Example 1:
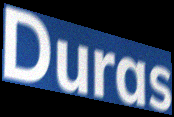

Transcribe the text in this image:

Duras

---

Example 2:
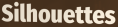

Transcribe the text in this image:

Silhouettes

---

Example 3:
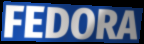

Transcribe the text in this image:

FEDORA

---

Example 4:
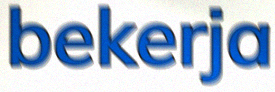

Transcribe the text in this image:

bekerja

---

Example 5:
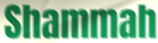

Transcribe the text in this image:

Shammah